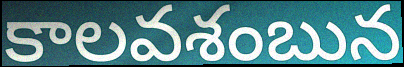
కాలవశంబున